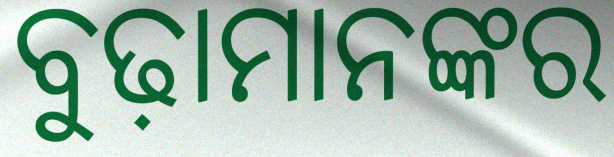
ବୁଢ଼ାମାନଙ୍କର